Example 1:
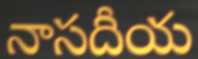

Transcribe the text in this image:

నాసదీయ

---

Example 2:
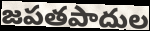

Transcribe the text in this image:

జపతపాదుల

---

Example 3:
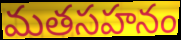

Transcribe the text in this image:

మతసహనం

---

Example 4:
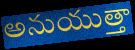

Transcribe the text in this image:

అనుయుత్తా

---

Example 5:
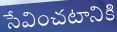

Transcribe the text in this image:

సేవించటానికి